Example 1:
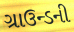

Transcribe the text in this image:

ગ્રાઉન્ડની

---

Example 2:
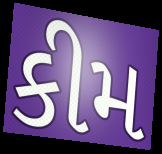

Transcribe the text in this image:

કીમ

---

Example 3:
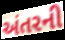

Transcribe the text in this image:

અંતરની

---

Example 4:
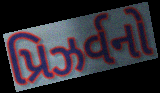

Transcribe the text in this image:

પ્રિઝર્વનો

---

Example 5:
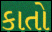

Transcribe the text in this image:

કાતો